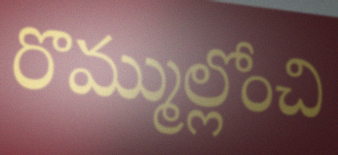
రొమ్ముల్లోంచి